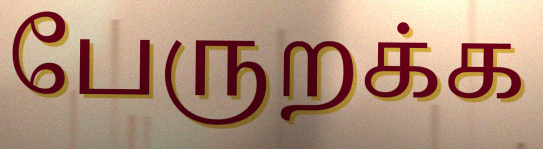
பேருறக்க